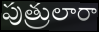
పుత్రులారా